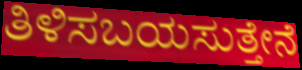
ತಿಳಿಸಬಯಸುತ್ತೇನೆ